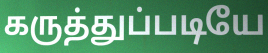
கருத்துப்படியே